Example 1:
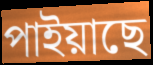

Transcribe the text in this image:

পাইয়াছে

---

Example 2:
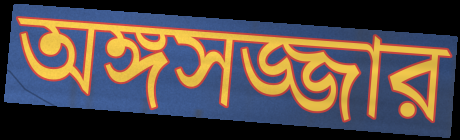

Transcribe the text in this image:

অঙ্গসজ্জার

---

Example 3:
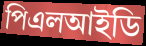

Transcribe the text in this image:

পিএলআইডি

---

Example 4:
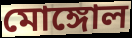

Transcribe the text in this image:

মোঙ্গোল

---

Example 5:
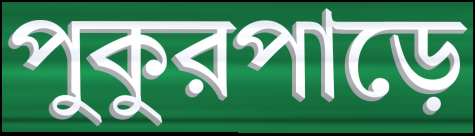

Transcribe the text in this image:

পুকুরপাড়ে